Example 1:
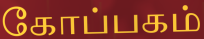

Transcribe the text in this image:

கோப்பகம்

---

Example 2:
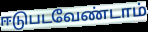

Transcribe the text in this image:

ஈடுபடவேண்டாம்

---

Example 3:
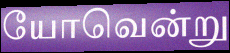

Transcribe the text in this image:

யோவென்று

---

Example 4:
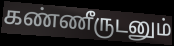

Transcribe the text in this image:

கண்ணீருடனும்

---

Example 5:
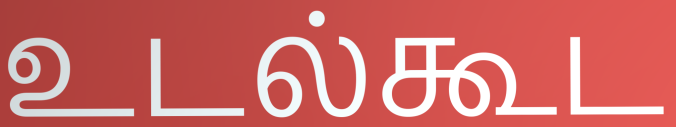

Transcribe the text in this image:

உடல்கூட